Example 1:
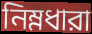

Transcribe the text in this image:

নিম্নধারা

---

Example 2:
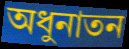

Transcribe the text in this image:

অধুনাতন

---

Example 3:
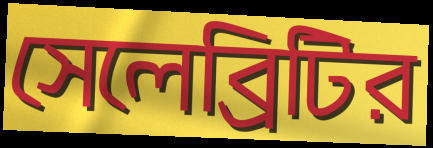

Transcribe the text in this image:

সেলেব্রিটির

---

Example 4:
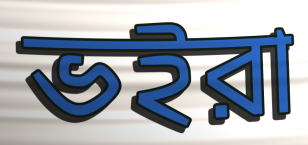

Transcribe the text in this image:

ভইরা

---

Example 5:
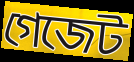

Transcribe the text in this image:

গেজেট